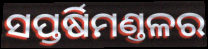
ସପ୍ତର୍ଷିମଣ୍ତଳର